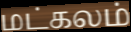
மட்கலம்